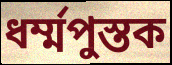
ধর্ম্মপুস্তক